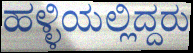
ಹಳ್ಳಿಯಲ್ಲಿದ್ದರು